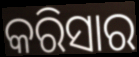
କରିସାର